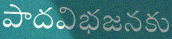
పాదవిభజనకు